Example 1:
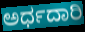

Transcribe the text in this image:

ಅರ್ಧದಾರಿ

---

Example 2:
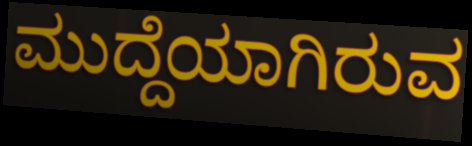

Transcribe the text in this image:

ಮುದ್ದೆಯಾಗಿರುವ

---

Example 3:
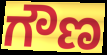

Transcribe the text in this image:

ಗೌಣ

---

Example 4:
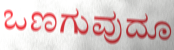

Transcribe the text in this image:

ಒಣಗುವುದೂ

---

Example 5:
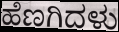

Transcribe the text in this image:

ಹೆಣಗಿದಳು